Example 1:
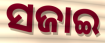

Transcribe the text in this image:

ସଜାଇ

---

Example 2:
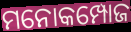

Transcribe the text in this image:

ମନୋକମ୍ପୋଜ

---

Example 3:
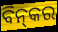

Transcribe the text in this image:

ବିନ୍‌କର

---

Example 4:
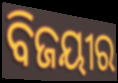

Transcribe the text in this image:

ବିଜୟୀର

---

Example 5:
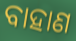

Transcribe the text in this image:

ବାହାଣ